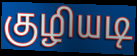
குழியடி